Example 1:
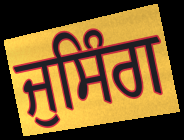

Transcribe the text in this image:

ਜੁਸਿੰਗ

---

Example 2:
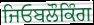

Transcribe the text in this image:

ਜਿਓਬਲੌਕਿੰਗ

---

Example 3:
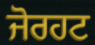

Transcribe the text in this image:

ਜੋਰਹਟ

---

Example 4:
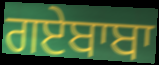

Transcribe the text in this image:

ਗਏਬਾਬਾ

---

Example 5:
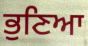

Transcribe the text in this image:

ਭੁਣਿਆ